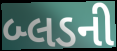
બ્લડની